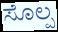
ಸೊಲ್ಪ